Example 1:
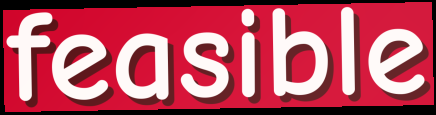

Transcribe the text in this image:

feasible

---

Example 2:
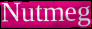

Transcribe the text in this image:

Nutmeg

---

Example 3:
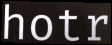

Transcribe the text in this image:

hotr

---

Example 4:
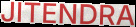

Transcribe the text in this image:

JITENDRA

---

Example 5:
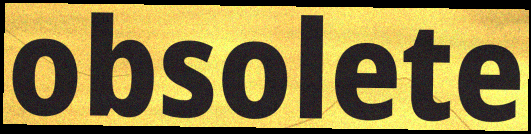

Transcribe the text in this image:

obsolete